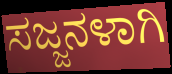
ಸಜ್ಜನಳಾಗಿ